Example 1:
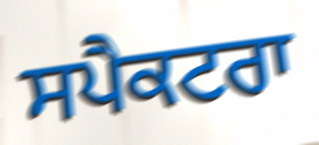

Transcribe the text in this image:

ਸਪੈਕਟਰਾ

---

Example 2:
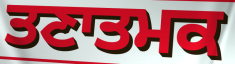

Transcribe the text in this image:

ਤਣਾਤਮਕ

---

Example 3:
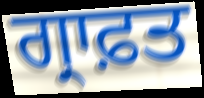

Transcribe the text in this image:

ਗ੍ਰਾਫ਼ਤ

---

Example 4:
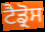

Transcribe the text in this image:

ਟੈਡ੍ਰੋਸ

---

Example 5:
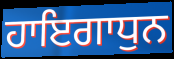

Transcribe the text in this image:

ਹਾਇਗਾਧੁਨ